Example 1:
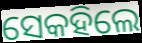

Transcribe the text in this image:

ସେକହିଲେ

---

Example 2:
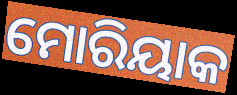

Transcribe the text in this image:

ମୋରିୟାକ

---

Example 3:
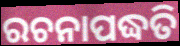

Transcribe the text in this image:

ରଚନାପଦ୍ଧତି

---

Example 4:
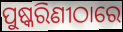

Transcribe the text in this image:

ପୁଷ୍କରିଣୀଠାରେ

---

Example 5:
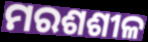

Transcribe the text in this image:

ମରଶଶୀଳ